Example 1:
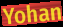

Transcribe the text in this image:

Yohan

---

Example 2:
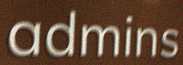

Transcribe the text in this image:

admins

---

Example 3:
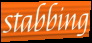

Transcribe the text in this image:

stabbing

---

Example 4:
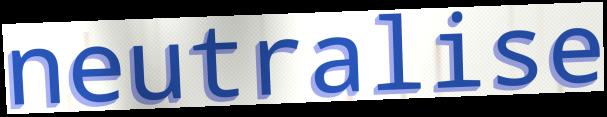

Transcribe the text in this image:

neutralise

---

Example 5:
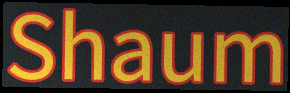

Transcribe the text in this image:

Shaum